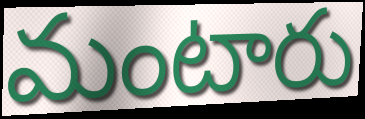
మంటారు